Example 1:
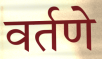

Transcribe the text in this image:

वर्तणे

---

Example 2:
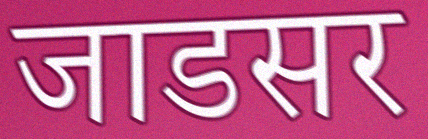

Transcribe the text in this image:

जाडसर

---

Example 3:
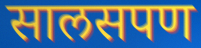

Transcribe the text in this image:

सालसपण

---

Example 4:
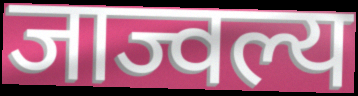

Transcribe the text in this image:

जाज्वल्य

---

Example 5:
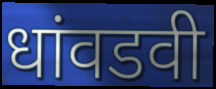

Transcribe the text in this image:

धांवडवी